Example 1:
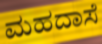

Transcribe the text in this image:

ಮಹದಾಸೆ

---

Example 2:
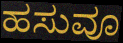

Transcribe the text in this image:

ಹಸುವೂ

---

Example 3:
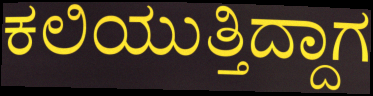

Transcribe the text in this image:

ಕಲಿಯುತ್ತಿದ್ದಾಗ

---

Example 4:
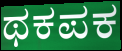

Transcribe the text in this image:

ಥಕಪಕ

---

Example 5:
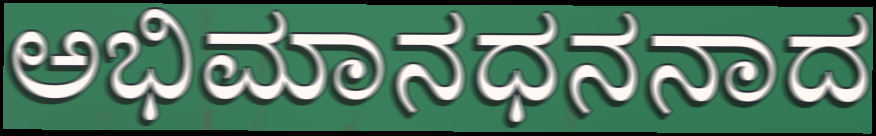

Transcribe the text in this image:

ಅಭಿಮಾನಧನನಾದ